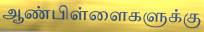
ஆண்பிள்ளைகளுக்கு